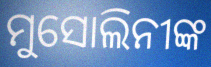
ମୁସୋଲିନୀଙ୍କ